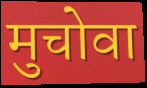
मुचोवा